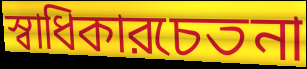
স্বাধিকারচেতনা